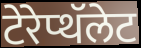
टेरेप्थॅलेट